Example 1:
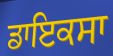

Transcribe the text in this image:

ਡਾਇਕਸਾ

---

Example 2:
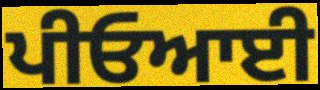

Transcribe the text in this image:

ਪੀਓਆਈ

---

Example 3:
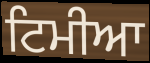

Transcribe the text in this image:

ਟਿਮੀਆ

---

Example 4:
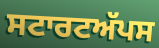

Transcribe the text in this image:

ਸਟਾਰਟਅੱਪਸ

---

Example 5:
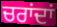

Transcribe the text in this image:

ਚਰਾਂਦਾਂ